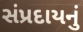
સંપ્રદાયનું